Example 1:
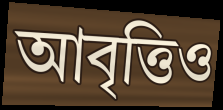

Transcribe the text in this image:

আবৃত্তিও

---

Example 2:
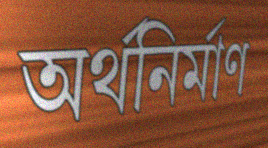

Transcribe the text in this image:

অর্থনির্মাণ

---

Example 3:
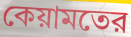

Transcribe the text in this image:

কেয়ামতের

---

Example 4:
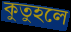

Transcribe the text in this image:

কুতুহলে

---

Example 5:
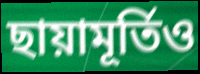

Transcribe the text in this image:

ছায়ামূর্তিও